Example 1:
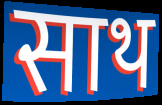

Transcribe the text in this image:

साथ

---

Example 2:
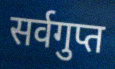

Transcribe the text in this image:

सर्वगुप्त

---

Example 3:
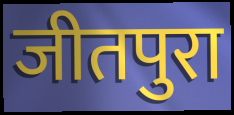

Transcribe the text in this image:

जीतपुरा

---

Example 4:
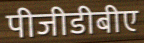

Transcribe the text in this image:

पीजीडीबीए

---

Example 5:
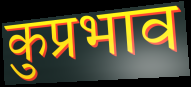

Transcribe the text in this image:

कुप्रभाव